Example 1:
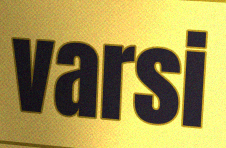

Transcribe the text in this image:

varsi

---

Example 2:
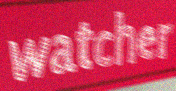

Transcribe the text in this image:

watcher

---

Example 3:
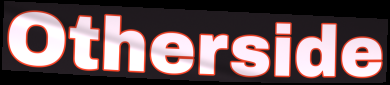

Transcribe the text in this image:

Otherside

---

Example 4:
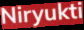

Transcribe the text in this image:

Niryukti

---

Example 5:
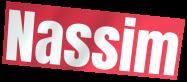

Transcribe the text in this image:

Nassim